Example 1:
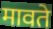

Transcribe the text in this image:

मावते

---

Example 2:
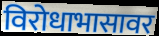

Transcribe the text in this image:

विरोधाभासावर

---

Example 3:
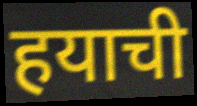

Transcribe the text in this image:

हयाची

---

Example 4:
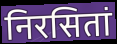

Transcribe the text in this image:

निरसितां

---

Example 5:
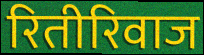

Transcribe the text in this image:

रितीरिवाज